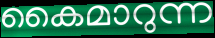
കൈമാറുന്ന